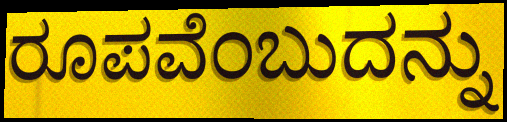
ರೂಪವೆಂಬುದನ್ನು